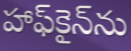
హాఫ్‌కైన్‌ను